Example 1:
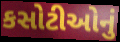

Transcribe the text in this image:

કસોટીઓનું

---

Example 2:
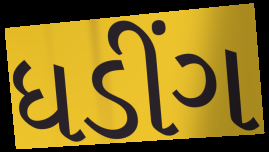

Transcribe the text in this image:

ધડીંગ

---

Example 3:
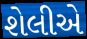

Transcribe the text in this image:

શેલીએ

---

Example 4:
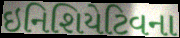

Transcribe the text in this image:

ઇનિશિયેટિવના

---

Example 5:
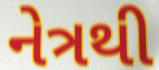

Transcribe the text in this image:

નેત્રથી